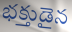
భక్తుడైన